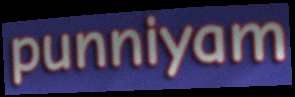
punniyam